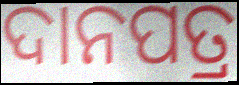
ଦାନପତ୍ର